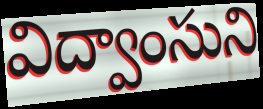
విద్వాంసుని